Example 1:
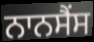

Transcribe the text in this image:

ਨਾਨਸੈਂਸ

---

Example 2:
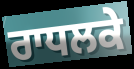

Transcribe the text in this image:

ਰਾਧਲਕੇ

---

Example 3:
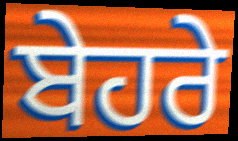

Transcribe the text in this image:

ਬੇਹਰੇ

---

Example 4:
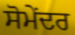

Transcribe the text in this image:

ਸੋਮੇਂਦਰ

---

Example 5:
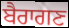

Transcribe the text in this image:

ਬੈਰਾਗਣ